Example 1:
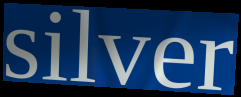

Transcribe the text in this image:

silver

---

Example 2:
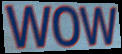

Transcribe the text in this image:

wow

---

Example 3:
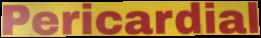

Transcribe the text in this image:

Pericardial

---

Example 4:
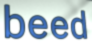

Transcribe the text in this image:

beed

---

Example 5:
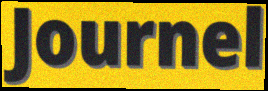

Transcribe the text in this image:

Journel